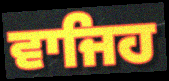
ਵਾਜਿਹ